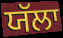
ਯੱਲਾ